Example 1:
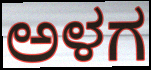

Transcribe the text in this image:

ಅಳಗ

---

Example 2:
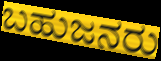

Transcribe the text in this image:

ಬಹುಜನರು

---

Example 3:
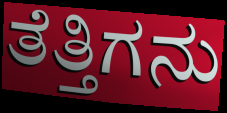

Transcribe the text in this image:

ತೆತ್ತಿಗನು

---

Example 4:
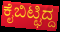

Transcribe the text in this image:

ಕೈಬಿಟ್ಟಿದ್ದ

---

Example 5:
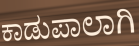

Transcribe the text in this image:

ಕಾಡುಪಾಲಾಗಿ